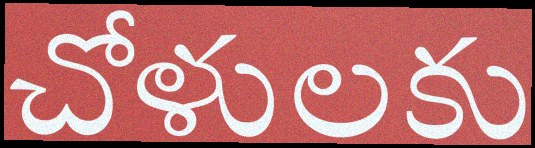
చోళులకు